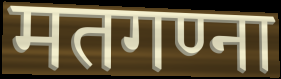
मतगण्ना